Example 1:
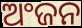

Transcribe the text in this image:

ଅଂଜନ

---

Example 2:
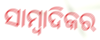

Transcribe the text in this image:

ସାମ୍ବାଦିକର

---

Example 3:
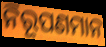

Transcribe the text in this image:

ନିରୂପଣମାନ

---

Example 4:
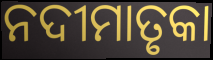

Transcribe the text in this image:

ନଦୀମାତୃକା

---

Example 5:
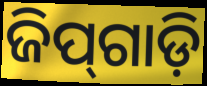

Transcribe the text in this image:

ଜିପ୍‌ଗାଡ଼ି